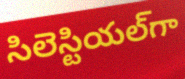
సిలెస్టియల్‌గా